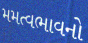
મમત્વભાવનો